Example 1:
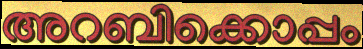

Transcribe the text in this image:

അറബിക്കൊപ്പം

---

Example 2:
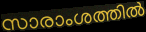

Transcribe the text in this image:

സാരാംശത്തിൽ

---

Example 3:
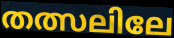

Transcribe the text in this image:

തത്സലിലേ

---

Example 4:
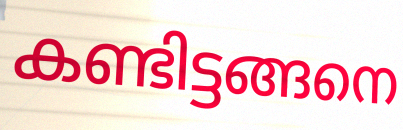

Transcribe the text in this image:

കണ്ടിട്ടങ്ങനെ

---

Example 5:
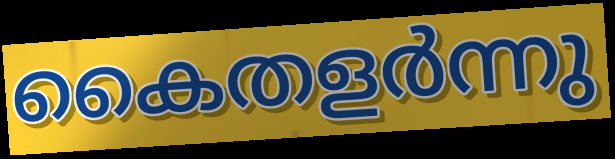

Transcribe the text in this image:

കൈതളർന്നു